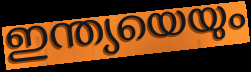
ഇന്ത്യയെയും